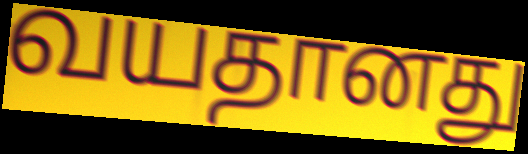
வயதானது